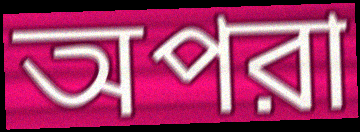
অপরা